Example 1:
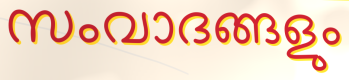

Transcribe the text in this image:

സംവാദങ്ങളും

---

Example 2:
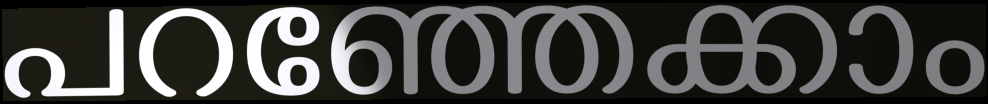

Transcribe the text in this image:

പറഞ്ഞേക്കാം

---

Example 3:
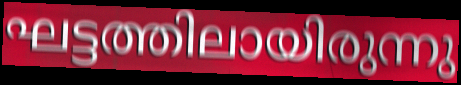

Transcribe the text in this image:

ഘട്ടത്തിലായിരുന്നു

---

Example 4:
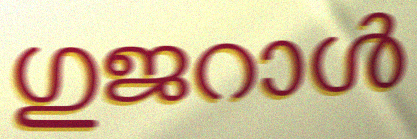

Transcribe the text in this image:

ഗുജറാൾ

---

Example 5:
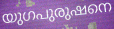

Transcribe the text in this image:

യുഗപുരുഷനെ